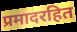
प्रमादरहित